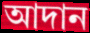
আদান